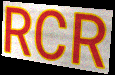
RCR